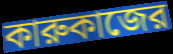
কারুকাজের